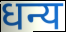
धन्य